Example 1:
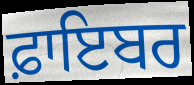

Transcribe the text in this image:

ਫ਼ਾਇਬਰ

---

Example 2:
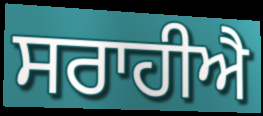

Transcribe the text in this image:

ਸਰਾਹੀਐ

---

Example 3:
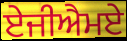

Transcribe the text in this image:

ਏਜੀਐਮਏ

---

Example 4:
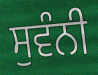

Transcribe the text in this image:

ਸੁਵੰਨੀ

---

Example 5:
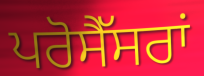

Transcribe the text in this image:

ਪਰੋਸੈੱਸਰਾਂ